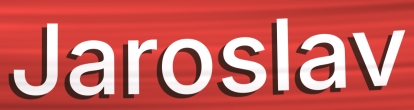
Jaroslav